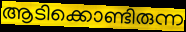
ആടിക്കൊണ്ടിരുന്ന